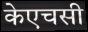
केएचसी